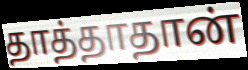
தாத்தாதான்